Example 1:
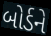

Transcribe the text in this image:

બોર્ડને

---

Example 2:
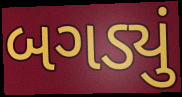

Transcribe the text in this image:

બગડ્યું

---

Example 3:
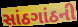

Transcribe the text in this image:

સાંઠગાંઠની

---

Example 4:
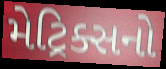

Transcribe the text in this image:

મેટ્રિક્સનો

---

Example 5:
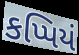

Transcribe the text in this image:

કપ્પિયં